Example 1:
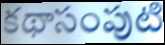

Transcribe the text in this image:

కథాసంపుటి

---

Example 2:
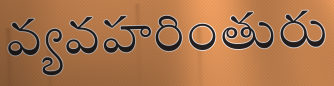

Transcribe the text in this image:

వ్యవహరింతురు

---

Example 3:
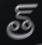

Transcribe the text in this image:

త్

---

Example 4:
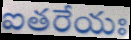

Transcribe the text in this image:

ఐతరేయః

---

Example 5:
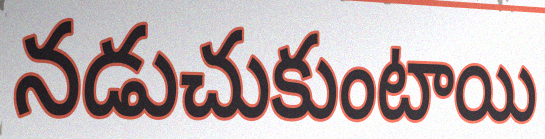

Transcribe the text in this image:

నడుచుకుంటాయి